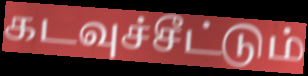
கடவுச்சீட்டும்